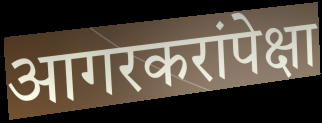
आगरकरांपेक्षा